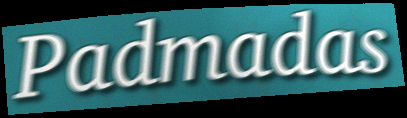
Padmadas